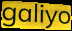
galiyo